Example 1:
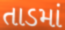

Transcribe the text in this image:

તાડમાં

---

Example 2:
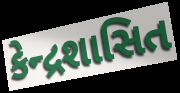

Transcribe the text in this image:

કેન્દ્રશાસિત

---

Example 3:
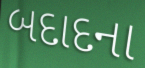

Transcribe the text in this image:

બદાદના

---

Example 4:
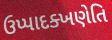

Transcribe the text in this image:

ઉપ્પાદક્ખણેતિ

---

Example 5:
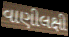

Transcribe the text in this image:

વાણીલક્ષી